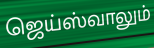
ஜெய்ஸ்வாலும்